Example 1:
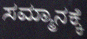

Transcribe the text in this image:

ಸಮ್ಮಾನಕ್ಕೆ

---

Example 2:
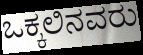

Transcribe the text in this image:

ಒಕ್ಕಲಿನವರು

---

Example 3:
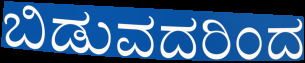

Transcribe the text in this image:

ಬಿಡುವದರಿಂದ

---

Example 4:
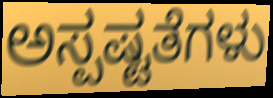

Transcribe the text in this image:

ಅಸ್ಪಷ್ಟತೆಗಳು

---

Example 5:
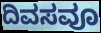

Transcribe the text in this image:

ದಿವಸವೂ